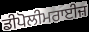
ਡੀਪੋਲੀਮਰਾਈਜ਼